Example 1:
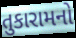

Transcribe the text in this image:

તુકારામનો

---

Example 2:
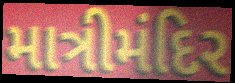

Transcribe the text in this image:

માત્રીમંદિર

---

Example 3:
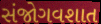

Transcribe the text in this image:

સંજોગવશાત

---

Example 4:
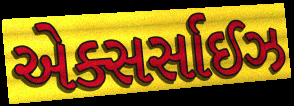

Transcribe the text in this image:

એક્સર્સાઈઝ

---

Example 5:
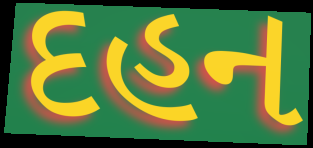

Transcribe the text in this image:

દહન